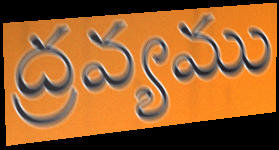
ద్రవ్యము